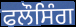
ਫਲੌਸਿੰਗ